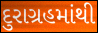
દુરાગ્રહમાંથી